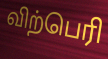
விற்பெரி